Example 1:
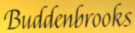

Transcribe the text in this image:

Buddenbrooks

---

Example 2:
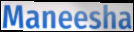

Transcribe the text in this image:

Maneesha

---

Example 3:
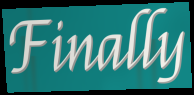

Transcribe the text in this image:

Finally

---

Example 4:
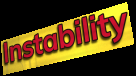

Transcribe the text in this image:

Instability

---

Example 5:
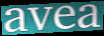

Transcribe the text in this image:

avea